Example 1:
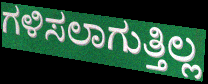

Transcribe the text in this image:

ಗಳಿಸಲಾಗುತ್ತಿಲ್ಲ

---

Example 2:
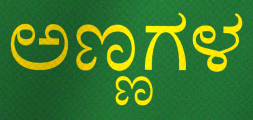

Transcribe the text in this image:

ಅಣ್ಣಗಳ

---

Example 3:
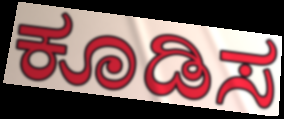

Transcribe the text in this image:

ಕೂಡಿಸ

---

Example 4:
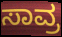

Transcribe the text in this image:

ಸಾವ್ರ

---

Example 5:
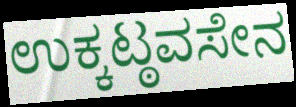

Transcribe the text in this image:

ಉಕ್ಕಟ್ಠವಸೇನ